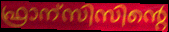
ഫ്രാന്സിസിന്റെ